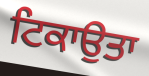
ਟਿਕਾਉਤਾ